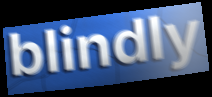
blindly